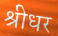
श्रीधर